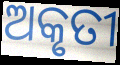
ଅକୃତୀ